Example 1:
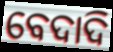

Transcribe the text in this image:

ବେଦାଦି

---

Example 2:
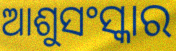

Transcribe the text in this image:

ଆଶୁସଂସ୍କାର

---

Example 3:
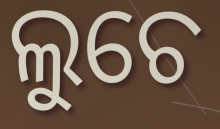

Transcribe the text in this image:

ଲୁଚେ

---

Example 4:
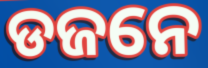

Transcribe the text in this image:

ଡଜନେ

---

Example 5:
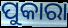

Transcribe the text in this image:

ପୁକାରା